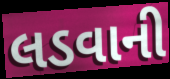
લડવાની